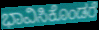
ಭಾವಿಸಿಕೊಂಡರೆ